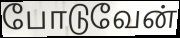
போடுவேன்